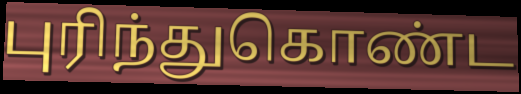
புரிந்துகொண்ட